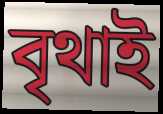
বৃথাই